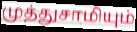
முத்துசாமியும்